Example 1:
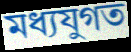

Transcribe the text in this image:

মধ্যযুগত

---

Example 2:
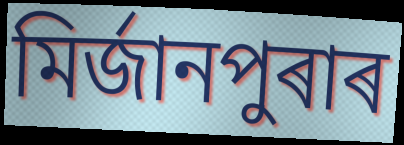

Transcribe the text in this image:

মিৰ্জানপুৰাৰ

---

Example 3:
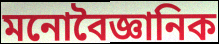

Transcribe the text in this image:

মনোবৈজ্ঞানিক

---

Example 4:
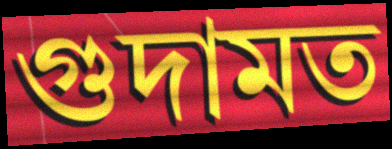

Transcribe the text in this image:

গুদামত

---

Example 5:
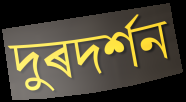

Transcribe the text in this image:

দুৰদৰ্শন